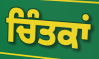
ਚਿੰਤਕਾਂ